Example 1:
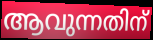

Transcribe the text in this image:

ആവുന്നതിന്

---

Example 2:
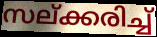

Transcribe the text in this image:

സല്ക്കരിച്ച്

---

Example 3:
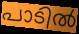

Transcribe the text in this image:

പാടിൽ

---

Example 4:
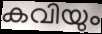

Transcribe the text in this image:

കവിയും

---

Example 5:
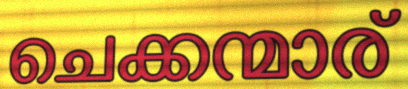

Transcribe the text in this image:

ചെക്കന്മാര്